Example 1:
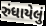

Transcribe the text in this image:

રુંધાયેલું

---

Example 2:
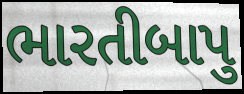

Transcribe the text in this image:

ભારતીબાપુ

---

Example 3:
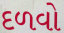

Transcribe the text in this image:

દળવો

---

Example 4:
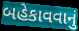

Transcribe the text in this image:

બહેકાવવાનું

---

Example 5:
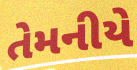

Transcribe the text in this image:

તેમનીયે